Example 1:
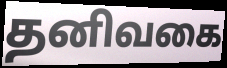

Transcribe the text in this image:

தனிவகை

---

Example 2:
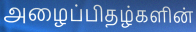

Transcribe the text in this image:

அழைப்பிதழ்களின்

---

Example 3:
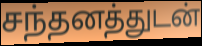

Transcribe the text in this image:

சந்தனத்துடன்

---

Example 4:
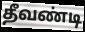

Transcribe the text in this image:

தீவண்டி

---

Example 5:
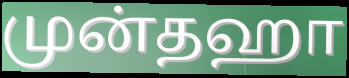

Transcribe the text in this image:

முன்தஹா